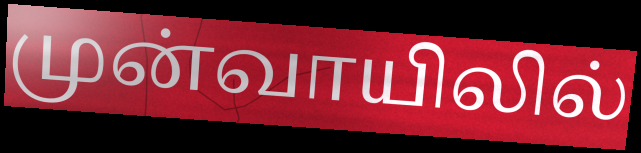
முன்வாயிலில்